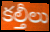
కల్తీలు